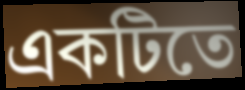
একটিতে